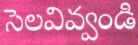
సెలవివ్వండి